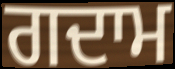
ਗਦਾਮ